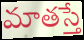
మాతస్తే